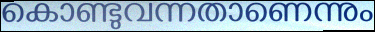
കൊണ്ടുവന്നതാണെന്നും